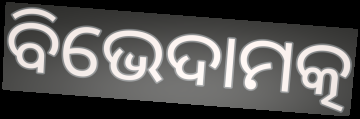
ବିଭେଦାମତ୍କ